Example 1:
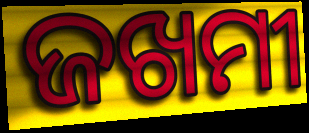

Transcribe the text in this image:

ଜଖମୀ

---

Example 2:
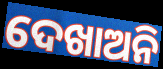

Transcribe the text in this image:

ଦେଖାଅନି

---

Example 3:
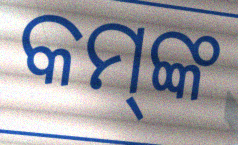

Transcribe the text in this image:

କମ୍‌ଙ୍କ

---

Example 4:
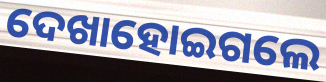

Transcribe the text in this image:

ଦେଖାହୋଇଗଲେ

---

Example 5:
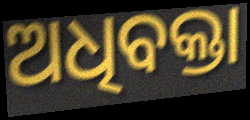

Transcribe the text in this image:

ଅଧିବକ୍ତା